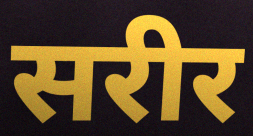
सरीर